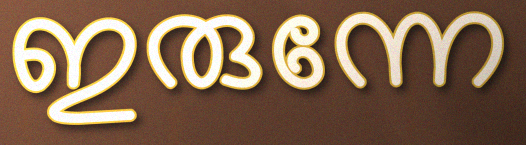
ഇരുന്നേ